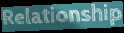
Relationship